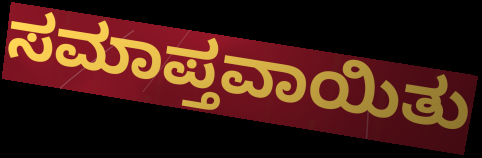
ಸಮಾಪ್ತವಾಯಿತು